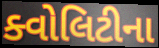
ક્વોલિટીના